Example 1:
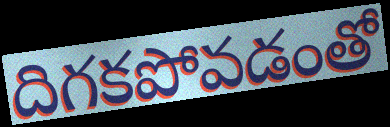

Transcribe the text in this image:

దిగకపోవడంతో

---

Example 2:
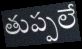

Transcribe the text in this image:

తుప్పలే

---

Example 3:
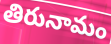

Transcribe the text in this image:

తిరునామం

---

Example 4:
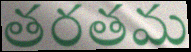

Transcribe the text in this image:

తరతమ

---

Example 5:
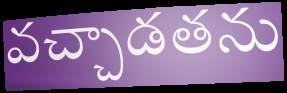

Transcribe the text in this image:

వచ్చాడతను